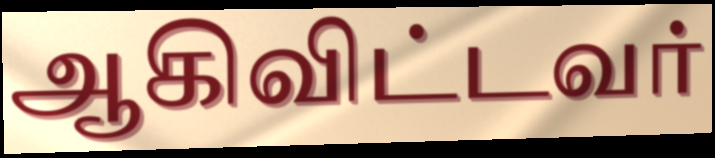
ஆகிவிட்டவர்